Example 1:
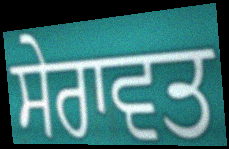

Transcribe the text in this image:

ਸੇਰਾਵਤ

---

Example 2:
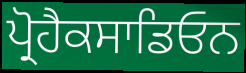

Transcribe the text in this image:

ਪ੍ਰੋਹੈਕਸਾਡਿਓਨ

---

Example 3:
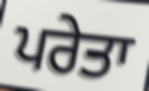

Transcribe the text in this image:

ਪਰੇਤਾ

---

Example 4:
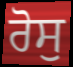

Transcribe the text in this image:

ਰੋਸੁ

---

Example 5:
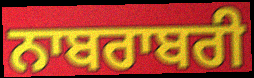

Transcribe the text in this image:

ਨਾਬਰਾਬਰੀ